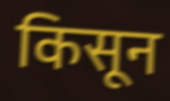
किसून